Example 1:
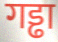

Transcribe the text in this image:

गड्ढा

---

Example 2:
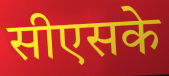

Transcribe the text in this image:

सीएसके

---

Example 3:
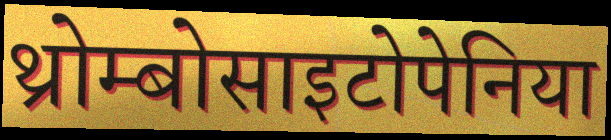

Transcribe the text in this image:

थ्रोम्बोसाइटोपेनिया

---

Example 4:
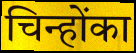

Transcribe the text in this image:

चिन्होंका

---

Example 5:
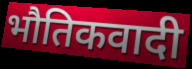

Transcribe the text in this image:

भौतिकवादी